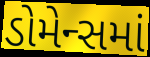
ડોમેન્સમાં